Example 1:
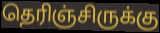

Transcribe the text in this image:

தெரிஞ்சிருக்கு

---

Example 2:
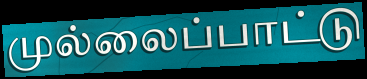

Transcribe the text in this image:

முல்லைப்பாட்டு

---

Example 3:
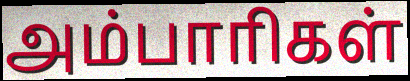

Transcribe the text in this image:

அம்பாரிகள்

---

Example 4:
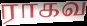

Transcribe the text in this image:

ராகவ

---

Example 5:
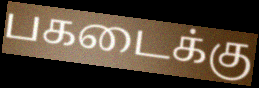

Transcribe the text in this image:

பகடைக்கு